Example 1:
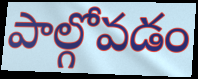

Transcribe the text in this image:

పాల్గోవడం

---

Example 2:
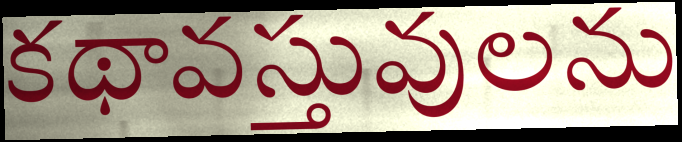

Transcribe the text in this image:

కథావస్తువులను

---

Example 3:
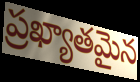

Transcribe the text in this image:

ప్రఖ్యాతమైన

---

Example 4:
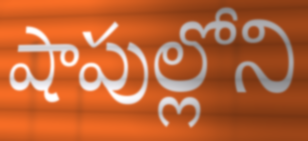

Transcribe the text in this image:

షాపుల్లోని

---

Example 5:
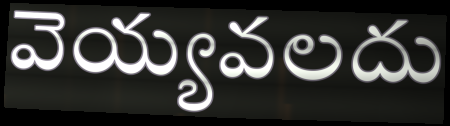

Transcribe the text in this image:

వెయ్యవలదు